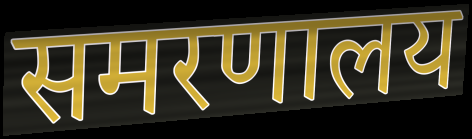
समरणालय